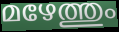
മഴേത്തും